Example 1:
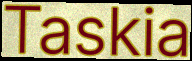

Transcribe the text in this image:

Taskia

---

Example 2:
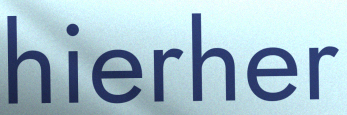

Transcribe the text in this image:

hierher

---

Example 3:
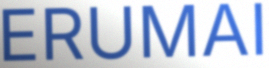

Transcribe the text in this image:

ERUMAI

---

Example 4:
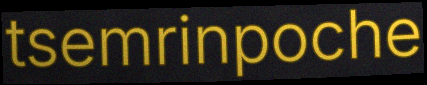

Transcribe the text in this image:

tsemrinpoche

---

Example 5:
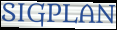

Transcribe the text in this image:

SIGPLAN